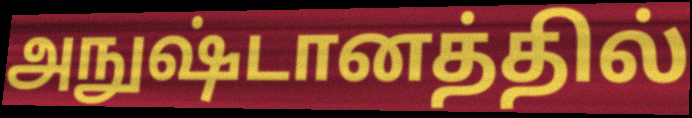
அநுஷ்டானத்தில்